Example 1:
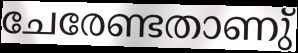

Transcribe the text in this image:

ചേരേണ്ടതാണു്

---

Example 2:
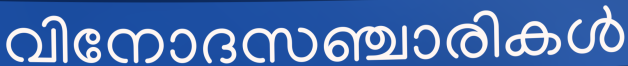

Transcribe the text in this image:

വിനോദസഞ്ചാരികൾ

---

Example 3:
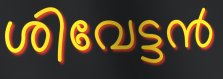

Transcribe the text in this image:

ശിവേട്ടൻ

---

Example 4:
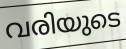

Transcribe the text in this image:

വരിയുടെ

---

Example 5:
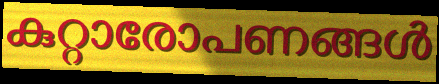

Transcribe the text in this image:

കുറ്റാരോപണങ്ങൾ